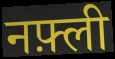
नफ़्ली